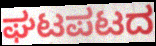
ಘಟಪಟದ